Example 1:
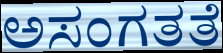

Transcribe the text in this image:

ಅಸಂಗತತೆ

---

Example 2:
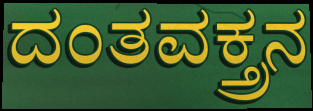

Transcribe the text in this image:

ದಂತವಕ್ತ್ರನ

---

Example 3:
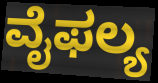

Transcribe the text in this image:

ವೈಫಲ್ಯ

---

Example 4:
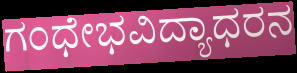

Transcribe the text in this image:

ಗಂಧೇಭವಿದ್ಯಾಧರನ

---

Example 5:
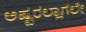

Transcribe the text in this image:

ಅಷ್ಟರಲ್ಲಾಗಲೇ